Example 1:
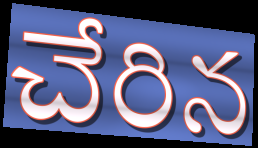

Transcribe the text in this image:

చేరిన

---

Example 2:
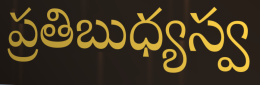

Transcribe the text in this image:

ప్రతిబుధ్యస్వ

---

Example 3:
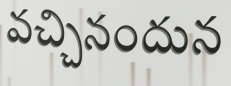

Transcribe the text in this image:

వచ్చినందున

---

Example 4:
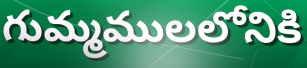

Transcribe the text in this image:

గుమ్మములలోనికి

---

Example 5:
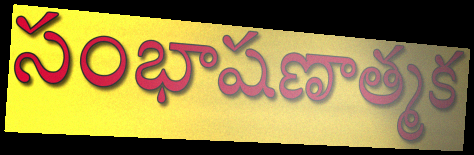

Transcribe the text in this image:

సంభాషణాత్మక